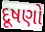
દૂષણો